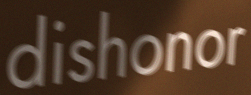
dishonor